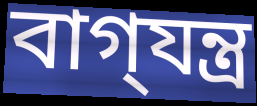
বাগ্‌যন্ত্র